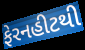
ફેરનહીટથી